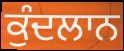
ਕੁੰਦਲਾਨ